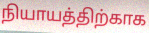
நியாயத்திற்காக